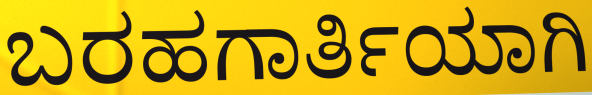
ಬರಹಗಾರ್ತಿಯಾಗಿ